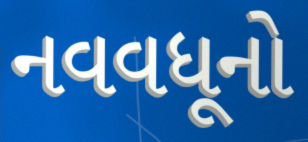
નવવધૂનો